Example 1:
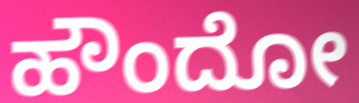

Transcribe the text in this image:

ಹೌಂದೋ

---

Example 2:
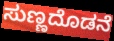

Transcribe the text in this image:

ಸುಣ್ಣದೊಡನೆ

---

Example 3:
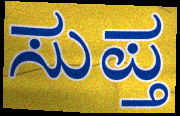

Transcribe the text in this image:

ಸುಪ್ತ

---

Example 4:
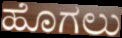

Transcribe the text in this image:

ಹೊಗಲು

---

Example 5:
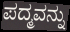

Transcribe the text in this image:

ಪದ್ಮವನ್ನು